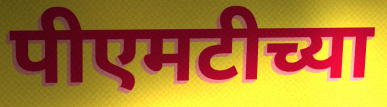
पीएमटीच्या